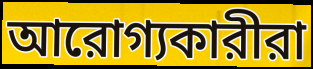
আরোগ্যকারীরা